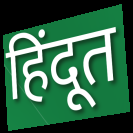
हिंदूत